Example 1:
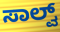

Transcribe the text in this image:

ಸಾಲ್ವ್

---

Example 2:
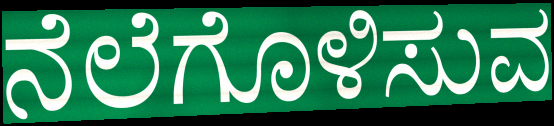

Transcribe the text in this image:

ನೆಲೆಗೊಳಿಸುವ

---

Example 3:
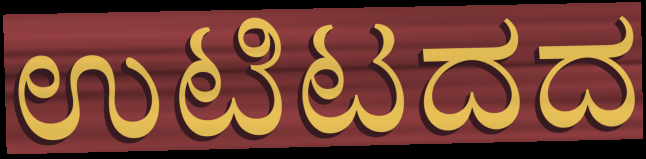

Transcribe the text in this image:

ಉಟಿಟದದ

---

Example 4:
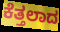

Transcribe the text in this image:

ಕೆತ್ತಲಾದ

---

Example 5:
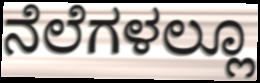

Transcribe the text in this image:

ನೆಲೆಗಳಲ್ಲೂ